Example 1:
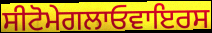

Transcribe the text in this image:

ਸੀਟੋਮੇਗਲਾਓਵਾਇਰਸ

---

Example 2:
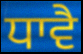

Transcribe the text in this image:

ਧਾਵੈ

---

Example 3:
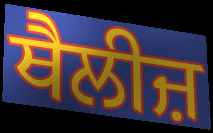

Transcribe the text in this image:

ਥੈਲੀਜ਼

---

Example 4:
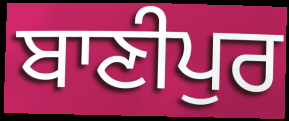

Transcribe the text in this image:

ਬਾਣੀਪੁਰ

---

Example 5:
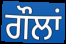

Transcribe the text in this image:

ਗੌਲਾਂ